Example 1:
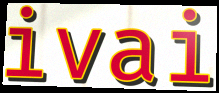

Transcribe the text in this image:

ivai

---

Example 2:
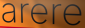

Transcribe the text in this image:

arere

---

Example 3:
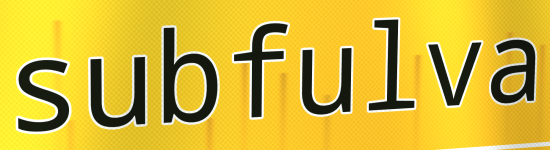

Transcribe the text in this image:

subfulva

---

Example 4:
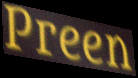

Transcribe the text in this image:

Preen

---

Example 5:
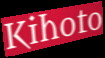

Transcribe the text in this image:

Kihoto